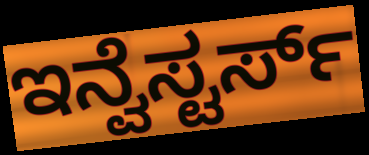
ಇನ್ವೆಸ್ಟರ್ಸ್